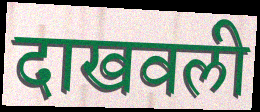
दाखवली